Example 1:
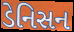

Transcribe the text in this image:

ડેનિસન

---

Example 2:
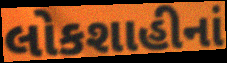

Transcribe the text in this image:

લોકશાહીનાં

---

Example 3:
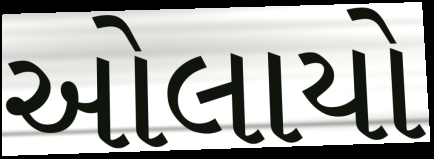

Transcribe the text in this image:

ઓલાયો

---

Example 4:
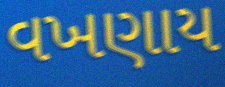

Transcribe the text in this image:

વખણાય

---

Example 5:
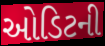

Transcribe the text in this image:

ઓડિટની